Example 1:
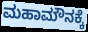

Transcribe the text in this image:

ಮಹಾಮೌನಕ್ಕೆ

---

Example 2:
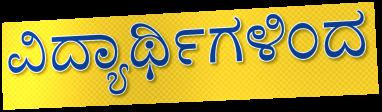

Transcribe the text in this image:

ವಿದ್ಯಾರ್ಥಿಗಳಿಂದ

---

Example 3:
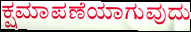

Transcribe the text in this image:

ಕ್ಷಮಾಪಣೆಯಾಗುವುದು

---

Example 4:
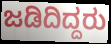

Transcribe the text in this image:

ಜಡಿದಿದ್ದರು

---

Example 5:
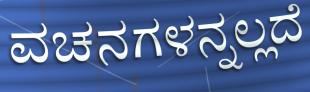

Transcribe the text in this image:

ವಚನಗಳನ್ನಲ್ಲದೆ